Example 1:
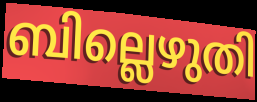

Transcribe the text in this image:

ബില്ലെഴുതി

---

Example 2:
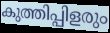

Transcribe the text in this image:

കുത്തിപ്പിളരും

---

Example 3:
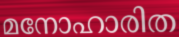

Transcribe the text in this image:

മനോഹാരിത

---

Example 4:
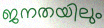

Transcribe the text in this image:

ജനതയിലും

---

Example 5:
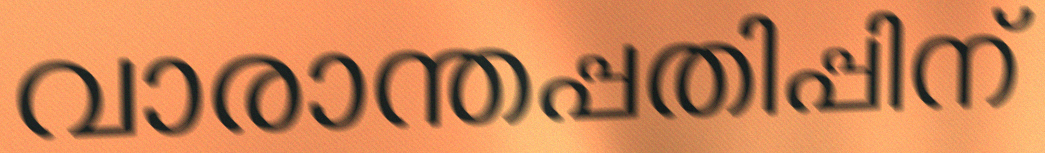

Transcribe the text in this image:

വാരാന്തപ്പതിപ്പിന്